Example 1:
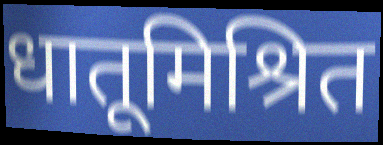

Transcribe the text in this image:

धातूमिश्रित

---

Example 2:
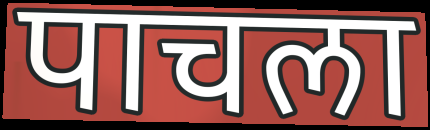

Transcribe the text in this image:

पाचला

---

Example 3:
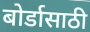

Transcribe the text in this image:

बोर्डासाठी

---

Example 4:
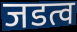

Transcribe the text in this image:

जडत्व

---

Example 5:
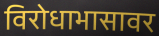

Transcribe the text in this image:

विरोधाभासावर